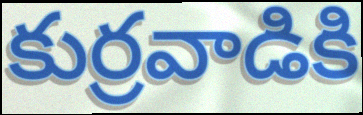
కుర్రవాడికి